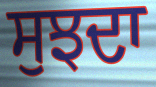
ਸੁਝਦਾ